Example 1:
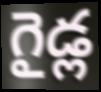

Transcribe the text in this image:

గైడ్ల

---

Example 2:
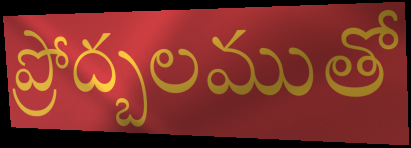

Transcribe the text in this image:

ప్రోద్బలముతో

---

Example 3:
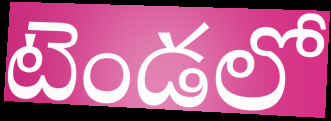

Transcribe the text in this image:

టెండలో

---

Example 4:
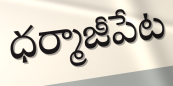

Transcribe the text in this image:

ధర్మాజీపేట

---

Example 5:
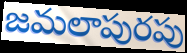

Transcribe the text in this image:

జమలాపురపు